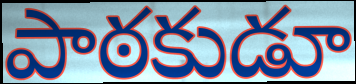
పాఠకుడూ